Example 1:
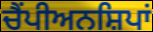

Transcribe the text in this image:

ਚੈਂਪੀਅਨਸ਼ਿਪਾਂ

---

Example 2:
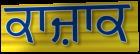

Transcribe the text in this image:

ਕਾਜ਼ਾਕ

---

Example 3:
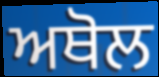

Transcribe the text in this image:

ਅਥੋਲ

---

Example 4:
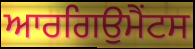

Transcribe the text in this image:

ਆਰਗਿਉਮੈਂਟਸ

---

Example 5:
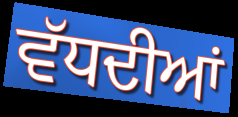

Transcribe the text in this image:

ਵੱਧਦੀਆਂ